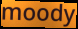
moody